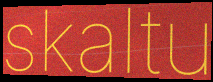
skaltu